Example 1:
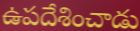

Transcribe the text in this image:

ఉపదేశించాడు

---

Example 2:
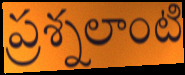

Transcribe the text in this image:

ప్రశ్నలాంటి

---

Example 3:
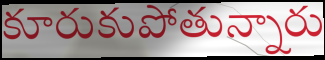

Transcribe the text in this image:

కూరుకుపోతున్నారు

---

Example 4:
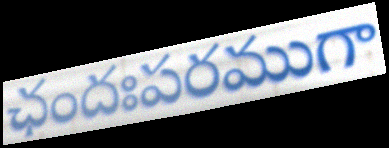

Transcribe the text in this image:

ఛందఃపరముగా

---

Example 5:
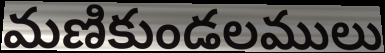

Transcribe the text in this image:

మణికుండలములు